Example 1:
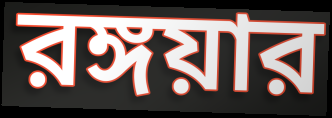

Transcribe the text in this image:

রঙ্গয়ার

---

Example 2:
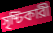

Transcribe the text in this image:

সৃষ্টিকারী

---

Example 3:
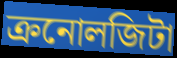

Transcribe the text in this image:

ক্রনোলজিটা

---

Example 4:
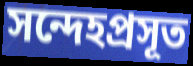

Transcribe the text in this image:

সন্দেহপ্রসূত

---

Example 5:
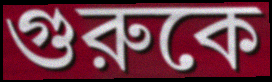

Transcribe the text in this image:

গুরুকে